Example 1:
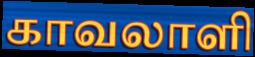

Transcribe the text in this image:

காவலாளி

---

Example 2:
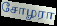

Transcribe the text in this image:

சோழரா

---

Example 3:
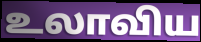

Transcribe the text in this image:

உலாவிய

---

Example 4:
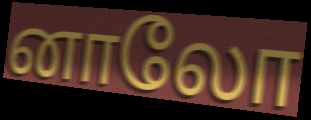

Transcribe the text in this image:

னாலோ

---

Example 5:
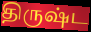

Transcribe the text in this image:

திருஷ்ட